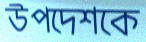
উপদেশকে